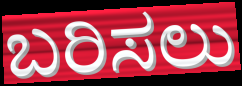
ಬರಿಸಲು